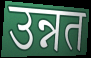
उन्नत